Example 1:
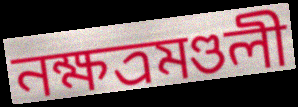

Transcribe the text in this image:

নক্ষত্রমণ্ডলী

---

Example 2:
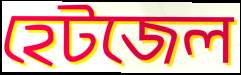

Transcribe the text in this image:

হেটজেল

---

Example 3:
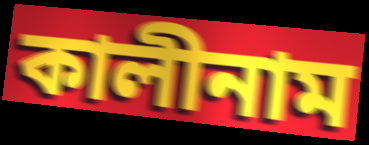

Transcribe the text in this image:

কালীনাম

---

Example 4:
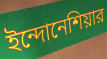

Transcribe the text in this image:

ইন্দোনেশিয়ার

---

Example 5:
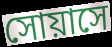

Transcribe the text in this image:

সোয়াসে